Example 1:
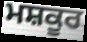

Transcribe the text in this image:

ਮਸ਼ਕੂਰ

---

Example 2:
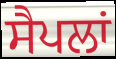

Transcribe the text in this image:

ਸੈਪਲਾਂ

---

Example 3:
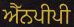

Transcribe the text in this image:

ਐੱਨਪੀਪੀ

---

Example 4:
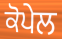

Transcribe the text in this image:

ਕੋਪੇਲ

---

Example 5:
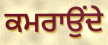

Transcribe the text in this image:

ਕਮਰਾਉਂਦੇ